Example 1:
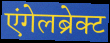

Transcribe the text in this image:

एंगेलब्रेक्ट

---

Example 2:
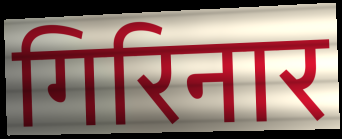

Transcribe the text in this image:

गिरिनार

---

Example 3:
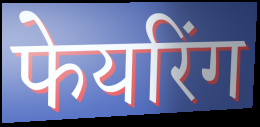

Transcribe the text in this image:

फेयरिंग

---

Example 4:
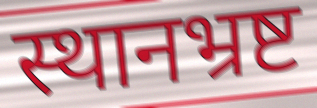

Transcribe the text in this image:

स्थानभ्रष्ट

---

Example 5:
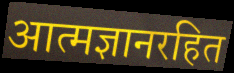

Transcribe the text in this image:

आत्मज्ञानरहित